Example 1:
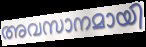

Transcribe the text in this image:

അവസാനമായി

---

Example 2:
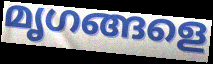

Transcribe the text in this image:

മൃഗങ്ങളെ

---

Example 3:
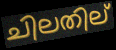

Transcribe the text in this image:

ചിലതില്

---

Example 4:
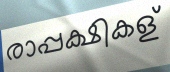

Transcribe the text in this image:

രാപ്പക്ഷികള്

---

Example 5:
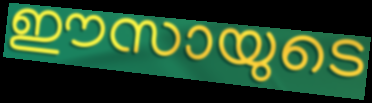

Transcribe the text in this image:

ഈസായുടെ